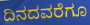
ದಿನದವರೆಗೂ